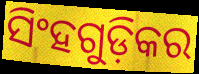
ସିଂହଗୁଡ଼ିକର